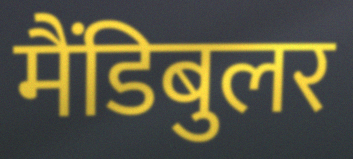
मैंडिबुलर